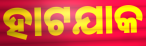
ହାଟଯାକ